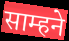
साम्हने